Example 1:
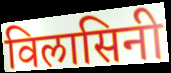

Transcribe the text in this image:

विलासिनी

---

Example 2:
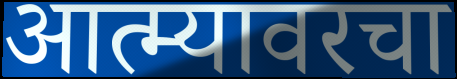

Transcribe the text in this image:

आत्म्यावरचा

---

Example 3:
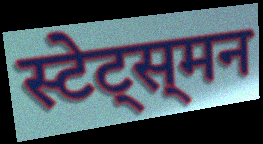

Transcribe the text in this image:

स्टेट्स्‌मन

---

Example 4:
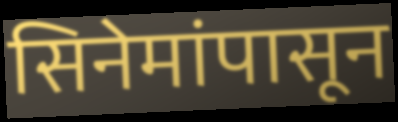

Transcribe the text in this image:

सिनेमांपासून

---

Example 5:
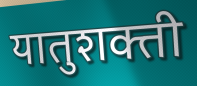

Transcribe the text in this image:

यातुशक्ती